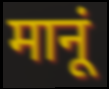
मानूं